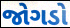
જોગડો